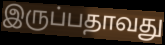
இருப்பதாவது